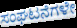
ಸಂಘಟನೆಗಳೇ